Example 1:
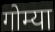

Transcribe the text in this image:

गोम्या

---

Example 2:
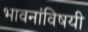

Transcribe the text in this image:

भावनांविषयी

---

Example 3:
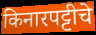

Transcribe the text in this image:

किनारपट्टीचे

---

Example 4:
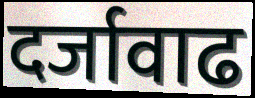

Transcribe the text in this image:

दर्जावाढ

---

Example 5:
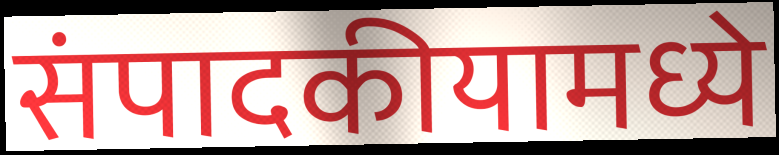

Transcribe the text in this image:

संपादकीयामध्ये